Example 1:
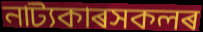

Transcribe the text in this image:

নাট্যকাৰসকলৰ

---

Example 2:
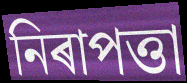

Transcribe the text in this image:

নিৰাপত্তা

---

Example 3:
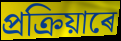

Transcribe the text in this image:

প্ৰক্ৰিয়াৰে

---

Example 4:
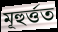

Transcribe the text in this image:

মূহুৰ্ত্তত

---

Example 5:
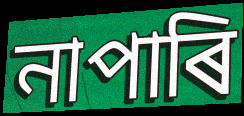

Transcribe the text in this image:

নাপাৰি